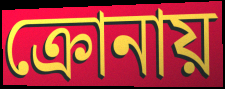
ক্রোনায়